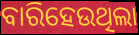
ବାରିହେଉଥିଲା